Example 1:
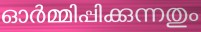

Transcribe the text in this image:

ഓർമ്മിപ്പിക്കുന്നതും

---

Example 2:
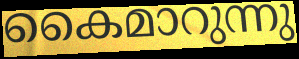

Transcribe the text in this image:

കൈമാറുന്നു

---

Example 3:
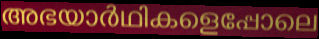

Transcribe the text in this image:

അഭയാർഥികളെപ്പോലെ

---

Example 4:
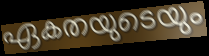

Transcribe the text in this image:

ഏകതയുടെയും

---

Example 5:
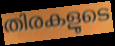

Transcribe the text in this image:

തിരകളുടെ